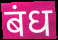
बंध